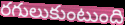
రగులుకుంటుంది